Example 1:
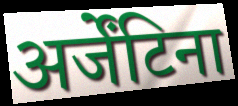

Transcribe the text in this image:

अर्जेंटिना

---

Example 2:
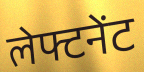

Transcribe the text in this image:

लेफ्टनेंट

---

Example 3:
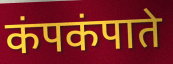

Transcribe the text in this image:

कंपकंपाते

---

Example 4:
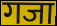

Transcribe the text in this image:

गजा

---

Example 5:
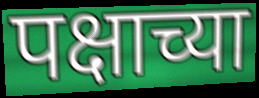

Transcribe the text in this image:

पक्षाच्या